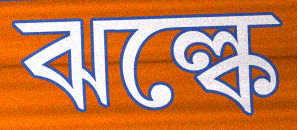
ঝল্কে